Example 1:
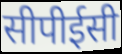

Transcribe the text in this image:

सीपीईसी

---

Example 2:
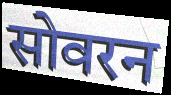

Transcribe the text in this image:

सोवरन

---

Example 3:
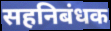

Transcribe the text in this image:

सहनिबंधक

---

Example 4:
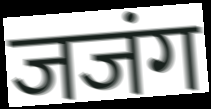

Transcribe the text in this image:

जजंग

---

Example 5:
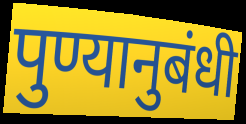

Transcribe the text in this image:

पुण्यानुबंधी